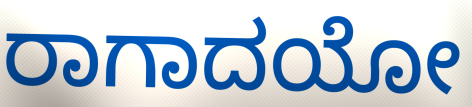
ರಾಗಾದಯೋ